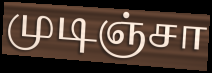
முடிஞ்சா